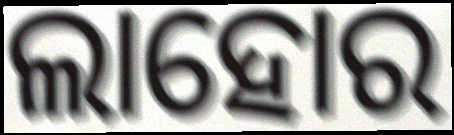
ଲାହୋର